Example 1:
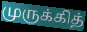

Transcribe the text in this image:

முருக்கித்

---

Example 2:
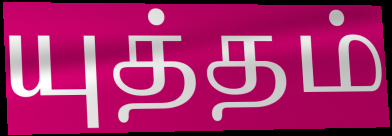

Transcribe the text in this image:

யுத்தம்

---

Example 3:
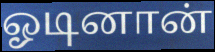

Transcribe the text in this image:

ஓடினான்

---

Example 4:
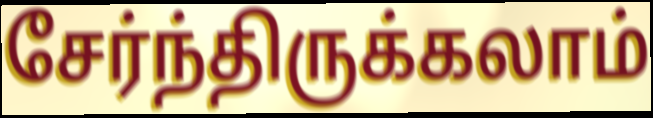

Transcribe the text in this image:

சேர்ந்திருக்கலாம்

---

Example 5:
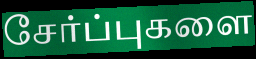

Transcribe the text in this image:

சேர்ப்புகளை